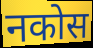
नकोस